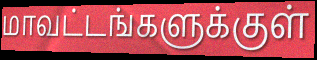
மாவட்டங்களுக்குள்